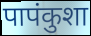
पापंकुशा